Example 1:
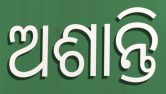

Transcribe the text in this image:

ଅଶାନ୍ତି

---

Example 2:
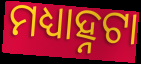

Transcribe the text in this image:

ମଧ୍ୟାହ୍ନଟା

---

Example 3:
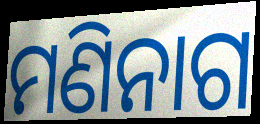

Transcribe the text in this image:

ମଣିନାଗ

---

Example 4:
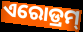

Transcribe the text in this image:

ଏରୋଡ୍ରମ୍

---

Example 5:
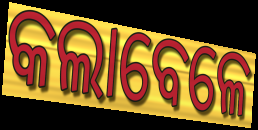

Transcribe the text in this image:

କଲାବେଳେ